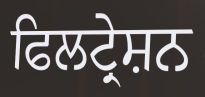
ਫਿਲਟ੍ਰੇਸ਼ਨ